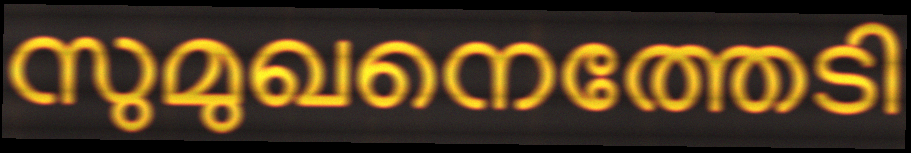
സുമുഖനെത്തേടി